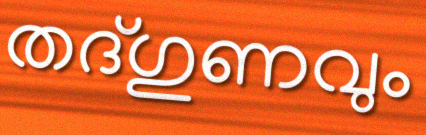
തദ്ഗുണവും